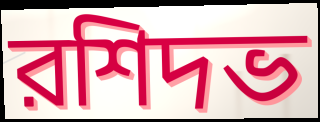
রশিদভ